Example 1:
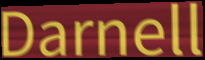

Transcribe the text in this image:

Darnell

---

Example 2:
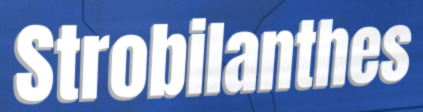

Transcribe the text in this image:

Strobilanthes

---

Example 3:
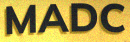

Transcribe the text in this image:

MADC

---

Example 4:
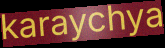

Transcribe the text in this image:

karaychya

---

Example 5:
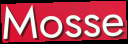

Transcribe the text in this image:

Mosse